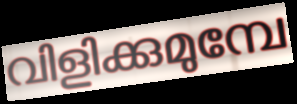
വിളിക്കുമുമ്പേ